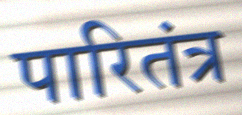
पारितंत्र